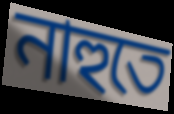
নাহুতে